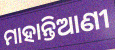
ମାହାନ୍ତିଆଣୀ